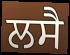
ਲਸੈ